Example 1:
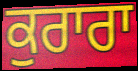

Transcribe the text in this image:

ਕੁਰਾਰਾ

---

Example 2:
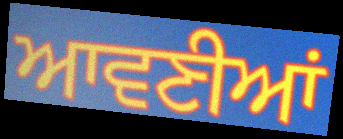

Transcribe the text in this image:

ਆਵਣੀਆਂ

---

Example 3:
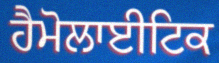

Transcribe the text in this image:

ਹੈਮੋਲਾਈਟਿਕ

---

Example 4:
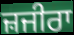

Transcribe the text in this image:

ਜ਼ਜੀਰਾ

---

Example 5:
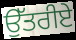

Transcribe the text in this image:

ਉੱਤਰੀਏ